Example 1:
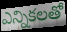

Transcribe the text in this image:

ఎన్నికలతో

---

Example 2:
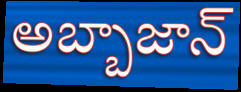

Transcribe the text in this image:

అబ్బాజాన్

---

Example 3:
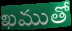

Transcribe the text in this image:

ఖముతో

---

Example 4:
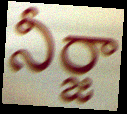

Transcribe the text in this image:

నీర్జా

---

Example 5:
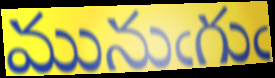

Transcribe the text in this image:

మునుఁగుఁ